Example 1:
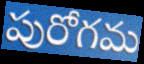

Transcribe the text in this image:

పురోగమ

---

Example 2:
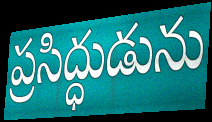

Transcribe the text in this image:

ప్రసిద్ధుడును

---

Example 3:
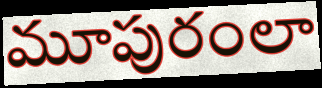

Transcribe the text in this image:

మూపురంలా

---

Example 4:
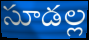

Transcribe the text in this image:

సూడల్ల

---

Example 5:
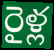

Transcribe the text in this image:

రైళ్ల